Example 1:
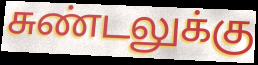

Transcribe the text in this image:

சுண்டலுக்கு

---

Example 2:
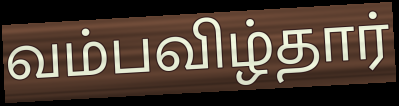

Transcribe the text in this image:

வம்பவிழ்தார்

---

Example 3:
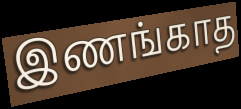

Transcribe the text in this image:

இணங்காத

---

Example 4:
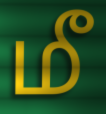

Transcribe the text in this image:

மீ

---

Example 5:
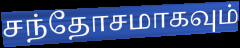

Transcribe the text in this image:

சந்தோசமாகவும்